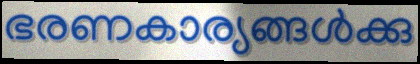
ഭരണകാര്യങ്ങൾക്കു